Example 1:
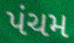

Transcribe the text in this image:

પંચમ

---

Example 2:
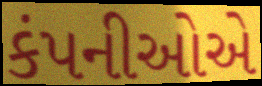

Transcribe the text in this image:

કંપનીઓએ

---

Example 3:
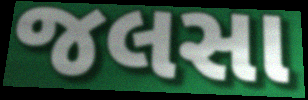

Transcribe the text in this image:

જલસા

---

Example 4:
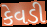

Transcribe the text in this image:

કેવડી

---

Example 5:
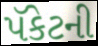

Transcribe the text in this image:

પૅકેટની